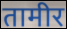
तामीर